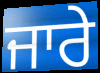
ਜਾਰੇ